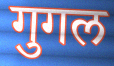
गुगल